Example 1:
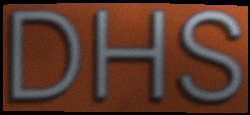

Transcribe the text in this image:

DHS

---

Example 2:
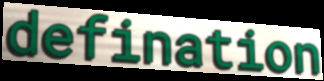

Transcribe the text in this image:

defination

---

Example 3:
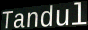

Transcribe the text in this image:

Tandul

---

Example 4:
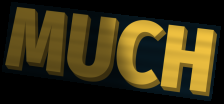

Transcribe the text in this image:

MUCH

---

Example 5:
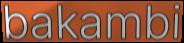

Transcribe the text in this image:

bakambi